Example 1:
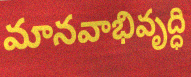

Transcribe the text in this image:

మానవాభివృద్ధి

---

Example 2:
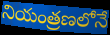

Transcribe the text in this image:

నియంత్రణలోనే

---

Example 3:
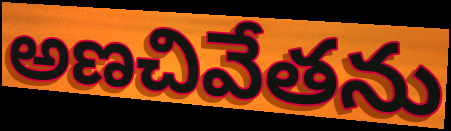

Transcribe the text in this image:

అణచివేతను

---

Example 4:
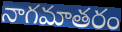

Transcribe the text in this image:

నాగమాతరం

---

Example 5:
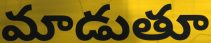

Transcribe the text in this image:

మాడుతూ